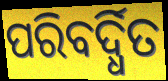
ପରିବର୍ଦ୍ଧିତ